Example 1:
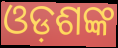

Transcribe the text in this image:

ଓଡ଼ଶଙ୍କ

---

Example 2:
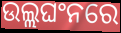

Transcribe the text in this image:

ଉଲ୍ଲଘଂନରେ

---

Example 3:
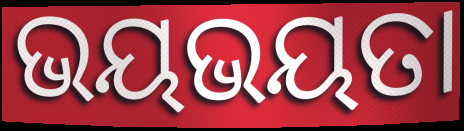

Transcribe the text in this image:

ଭୟଭୟତା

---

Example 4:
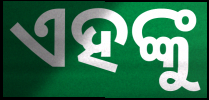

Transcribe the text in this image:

ଏହଙ୍କୁ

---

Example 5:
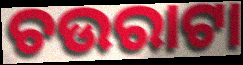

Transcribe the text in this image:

ଚଉରାଟା